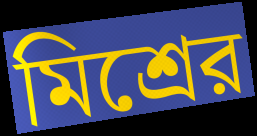
মিশ্রের